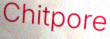
Chitpore